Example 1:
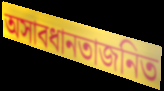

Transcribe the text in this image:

অসাবধানতাজনিত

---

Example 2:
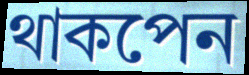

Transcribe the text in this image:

থাকপেন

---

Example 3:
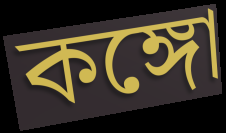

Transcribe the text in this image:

কঙ্গো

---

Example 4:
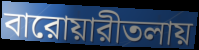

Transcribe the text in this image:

বারোয়ারীতলায়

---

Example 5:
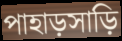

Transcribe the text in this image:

পাহাড়সাড়ি